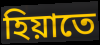
হিয়াতে